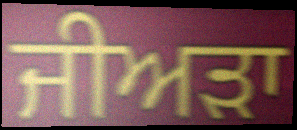
ਜੀਅੜਾ